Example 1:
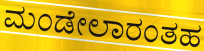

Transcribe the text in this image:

ಮಂಡೇಲಾರಂತಹ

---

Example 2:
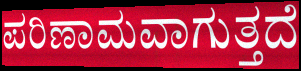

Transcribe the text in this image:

ಪರಿಣಾಮವಾಗುತ್ತದೆ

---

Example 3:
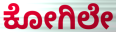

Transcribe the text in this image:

ಕೋಗಿಲೇ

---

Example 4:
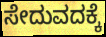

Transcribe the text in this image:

ಸೇದುವದಕ್ಕೆ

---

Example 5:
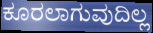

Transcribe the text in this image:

ಕೂರಲಾಗುವುದಿಲ್ಲ